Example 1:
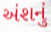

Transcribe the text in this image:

અંશનું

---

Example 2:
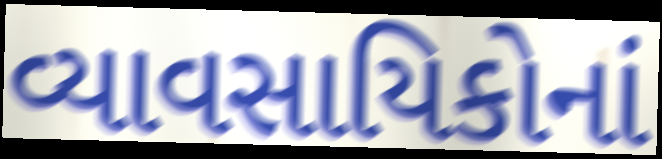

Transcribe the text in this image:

વ્યાવસાયિકોનાં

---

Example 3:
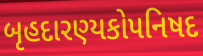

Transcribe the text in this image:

બૃહદારણ્યકોપનિષદ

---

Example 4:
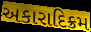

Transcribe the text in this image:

અકારાદિક્રમ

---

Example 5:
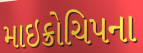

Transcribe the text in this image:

માઇક્રોચિપના